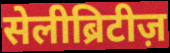
सेलीब्रिटीज़